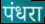
पंधरा